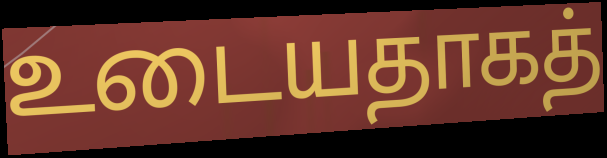
உடையதாகத்